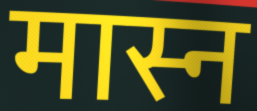
मास्न